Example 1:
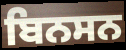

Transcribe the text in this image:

ਬਿਨਸਨ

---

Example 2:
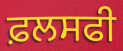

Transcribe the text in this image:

ਫ਼ਲਸਫੀ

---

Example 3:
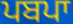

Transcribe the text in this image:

ਪਬਪਾ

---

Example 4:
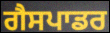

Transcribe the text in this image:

ਗੈਸਪਾਡਰ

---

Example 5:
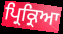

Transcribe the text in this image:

ਪ੍ਰਿਕ੍ਰਿਆ